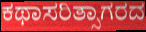
ಕಥಾಸರಿತ್ಸಾಗರದ